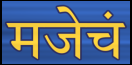
मजेचं